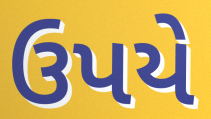
ઉપયે